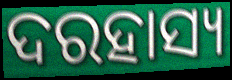
ଦରହାସ୍ୟ